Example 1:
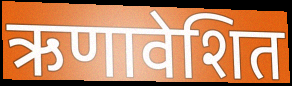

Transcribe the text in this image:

ऋणावेशित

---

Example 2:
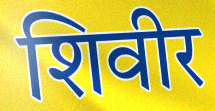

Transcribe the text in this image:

शिवीर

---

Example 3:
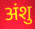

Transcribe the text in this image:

अंशु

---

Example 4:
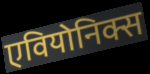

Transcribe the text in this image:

एवियोनिक्स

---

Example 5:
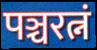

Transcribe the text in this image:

पञ्चरत्नं